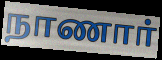
நாணார்